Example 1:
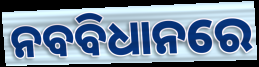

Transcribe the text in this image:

ନବବିଧାନରେ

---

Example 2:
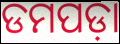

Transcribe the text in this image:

ଡମପଡ଼ା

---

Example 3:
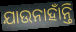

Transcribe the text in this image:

ଯାଉନାହାଁନ୍ତି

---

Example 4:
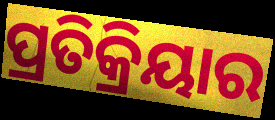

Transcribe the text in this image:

ପ୍ରତିକ୍ରିୟାର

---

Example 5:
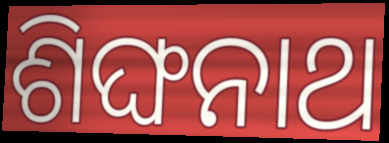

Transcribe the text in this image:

ଶିଙ୍ଘନାଥ